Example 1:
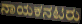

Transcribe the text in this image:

ನಾಯಕನಟರು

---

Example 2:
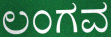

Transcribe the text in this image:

ಲಂಗವ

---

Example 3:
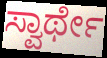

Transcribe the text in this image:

ಸ್ವಾರ್ಥೇ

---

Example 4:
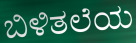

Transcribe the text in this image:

ಬಿಳಿತಲೆಯ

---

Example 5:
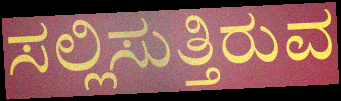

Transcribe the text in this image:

ಸಲ್ಲಿಸುತ್ತಿರುವ